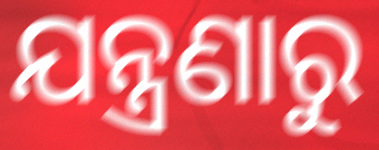
ଯନ୍ତ୍ରଣାରୁ